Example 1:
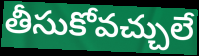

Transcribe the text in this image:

తీసుకోవచ్చులే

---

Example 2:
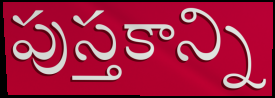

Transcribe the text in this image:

పుస్తకాన్ని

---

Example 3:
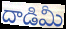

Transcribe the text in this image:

దాడిమీ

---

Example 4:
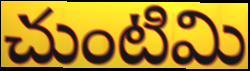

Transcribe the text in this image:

చుంటిమి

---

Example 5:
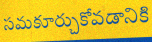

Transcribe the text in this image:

సమకూర్చుకోవడానికి